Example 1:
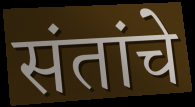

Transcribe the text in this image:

संतांचे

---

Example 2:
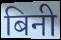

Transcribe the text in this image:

बिनी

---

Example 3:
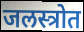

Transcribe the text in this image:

जलस्त्रोत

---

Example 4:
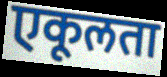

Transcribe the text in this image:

एकूलता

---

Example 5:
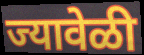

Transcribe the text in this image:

ज्यावेळी